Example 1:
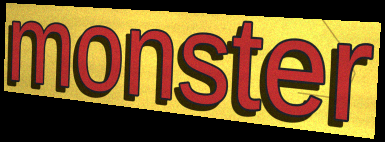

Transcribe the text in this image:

monster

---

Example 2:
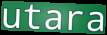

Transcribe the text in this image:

utara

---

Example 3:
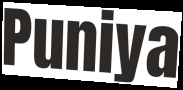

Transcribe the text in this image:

Puniya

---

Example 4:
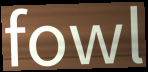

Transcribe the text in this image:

fowl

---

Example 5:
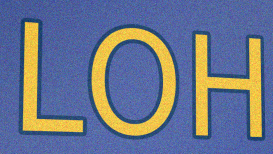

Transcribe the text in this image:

LOH